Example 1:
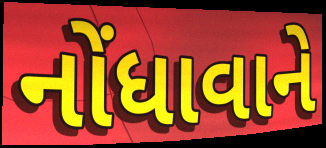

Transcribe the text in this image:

નોંધાવાને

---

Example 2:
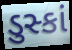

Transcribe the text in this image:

ડુસ્કાં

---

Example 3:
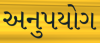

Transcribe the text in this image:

અનુપયોગ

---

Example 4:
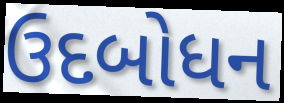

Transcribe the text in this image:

ઉદબોધન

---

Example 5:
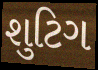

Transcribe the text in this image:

શુટિગ